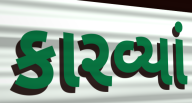
કારવ્યાં